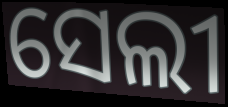
ସେଲୀ